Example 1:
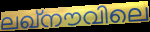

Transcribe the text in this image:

ലഖ്നൗവിലെ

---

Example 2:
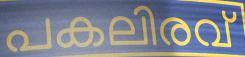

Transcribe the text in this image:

പകലിരവ്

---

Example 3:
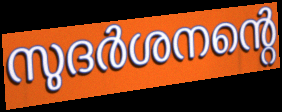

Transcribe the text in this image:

സുദർശനന്റെ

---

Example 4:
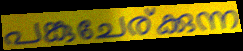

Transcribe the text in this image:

പങ്കുചേര്ക്കുന്ന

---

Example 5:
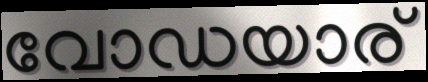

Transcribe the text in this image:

വോഡയാര്